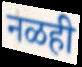
नळही